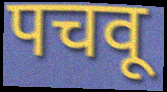
पचवू